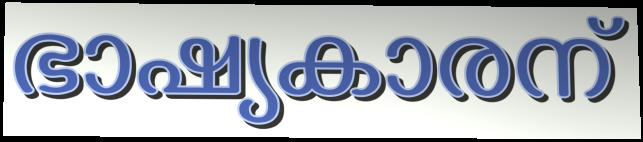
ഭാഷ്യകാരന്